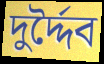
দুর্দ্দৈব